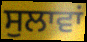
ਸੁਲਾਵਾਂ